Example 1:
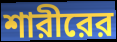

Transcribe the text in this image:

শারীরের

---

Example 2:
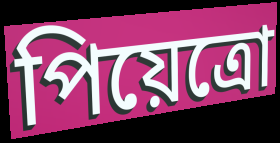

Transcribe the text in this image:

পিয়েত্রো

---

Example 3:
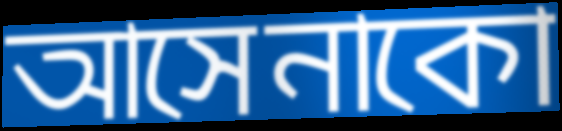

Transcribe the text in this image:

আসেনাকো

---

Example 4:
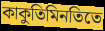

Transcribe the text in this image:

কাকুতিমিনতিতে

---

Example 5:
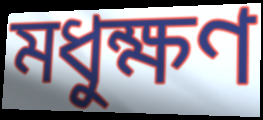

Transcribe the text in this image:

মধুক্ষণ